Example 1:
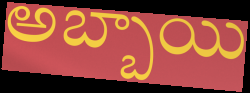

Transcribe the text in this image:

అబ్బాయి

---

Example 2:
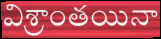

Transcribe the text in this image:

విశ్రాంతయినా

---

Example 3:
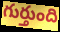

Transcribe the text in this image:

గుర్తుంది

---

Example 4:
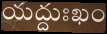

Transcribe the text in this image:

యద్దుఃఖం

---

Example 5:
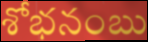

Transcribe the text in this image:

శోభనంబు